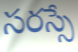
సరస్సే